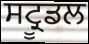
ਸਟ੍ਰੂਡਲ